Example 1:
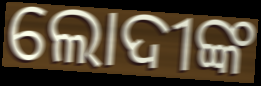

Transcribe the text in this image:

ଲୋଦୀଙ୍କ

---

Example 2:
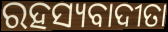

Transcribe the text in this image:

ରହସ୍ୟବାଦୀତା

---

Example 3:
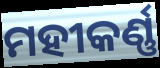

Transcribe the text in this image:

ମହୀକର୍ଣ୍ଣ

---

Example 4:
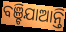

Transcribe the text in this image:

ବଞ୍ଚିଯାଆନ୍ତି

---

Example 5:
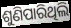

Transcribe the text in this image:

ଶୁଣିପାରିଥିଲି